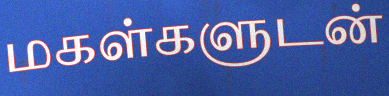
மகள்களுடன்